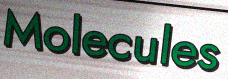
Molecules